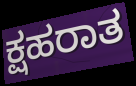
ಕ್ಷಹರಾತ